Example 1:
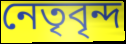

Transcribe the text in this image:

নেতৃবৃন্দ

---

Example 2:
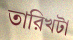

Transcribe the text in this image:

তারিখটা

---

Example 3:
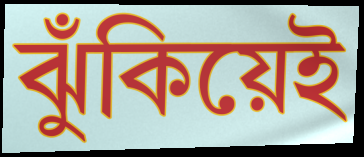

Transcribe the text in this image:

ঝুঁকিয়েই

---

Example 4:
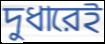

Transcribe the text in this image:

দুধারেই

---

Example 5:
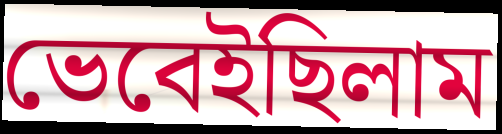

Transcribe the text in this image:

ভেবেইছিলাম